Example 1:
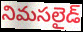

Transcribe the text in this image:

నిమసలైడ్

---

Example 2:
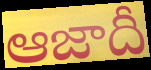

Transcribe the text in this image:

ఆజాదీ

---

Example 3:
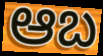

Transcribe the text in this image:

ఆబ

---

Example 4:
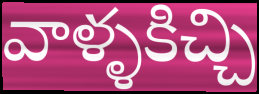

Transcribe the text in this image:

వాళ్ళకిచ్చి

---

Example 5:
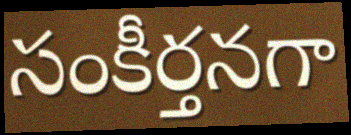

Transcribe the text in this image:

సంకీర్తనగా